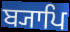
ਬ੍ਯਾਪਿ